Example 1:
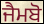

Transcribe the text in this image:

ਜੈਮਬੋ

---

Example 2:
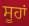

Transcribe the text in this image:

ਸੂਹਾਂ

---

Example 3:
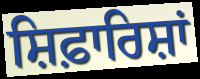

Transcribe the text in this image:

ਸ਼ਿਫ਼ਾਰਿਸ਼ਾਂ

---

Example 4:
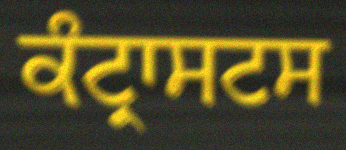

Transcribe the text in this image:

ਕੰਟ੍ਰਾਸਟਸ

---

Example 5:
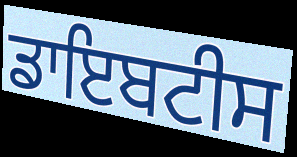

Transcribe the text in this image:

ਡਾਇਬਟੀਸ